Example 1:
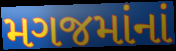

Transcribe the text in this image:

મગજમાંનાં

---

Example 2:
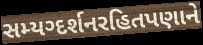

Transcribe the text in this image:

સમ્યગ્દર્શનરહિતપણાને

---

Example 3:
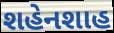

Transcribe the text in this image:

શહેનશાહ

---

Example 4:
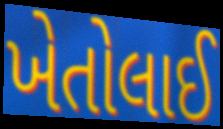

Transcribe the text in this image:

ખેતોલાઈ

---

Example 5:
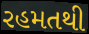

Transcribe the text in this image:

રહમતથી